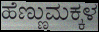
ಹೆಣ್ಣುಮಕ್ಕಳ